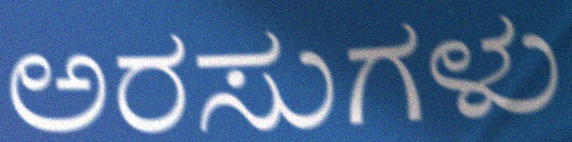
ಅರಸುಗಳು